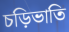
চড়িভাতি